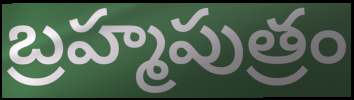
బ్రహ్మపుత్రం